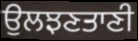
ਉਲਝਣਤਾਣੀ